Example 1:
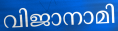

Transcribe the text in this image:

വിജാനാമി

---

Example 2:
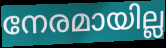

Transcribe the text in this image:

നേരമായില്ല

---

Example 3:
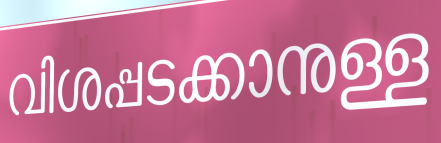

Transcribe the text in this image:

വിശപ്പടക്കാനുള്ള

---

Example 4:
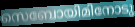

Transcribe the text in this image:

സെബോയിമിനോടു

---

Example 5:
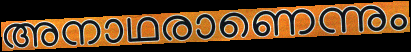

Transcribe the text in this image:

അനാഥരാണെന്നും